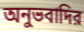
অনুভবাদির